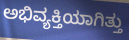
ಅಭಿವ್ಯಕ್ತಿಯಾಗಿತ್ತು